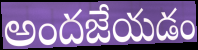
అందజేయడం